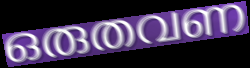
ഒരുതവണ